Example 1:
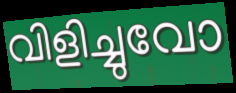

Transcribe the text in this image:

വിളിച്ചുവോ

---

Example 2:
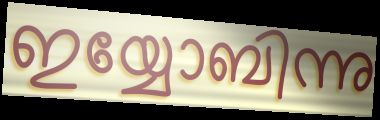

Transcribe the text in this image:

ഇയ്യോബിന്നു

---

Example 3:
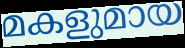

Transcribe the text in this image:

മകളുമായ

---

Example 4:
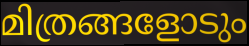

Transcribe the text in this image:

മിത്രങ്ങളോടും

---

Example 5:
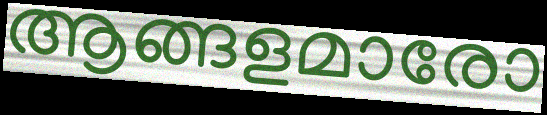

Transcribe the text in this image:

ആങ്ങളമാരോ